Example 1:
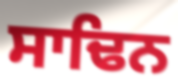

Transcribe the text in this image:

ਸਾਢਿਨ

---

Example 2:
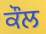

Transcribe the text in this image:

ਕੌਲ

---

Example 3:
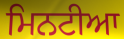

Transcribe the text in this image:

ਮਿਨਟੀਆ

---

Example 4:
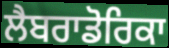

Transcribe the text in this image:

ਲੈਬਰਾਡੋਰਿਕਾ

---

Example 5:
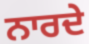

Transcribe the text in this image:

ਨਾਰਦੇ